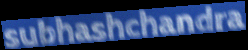
subhashchandra